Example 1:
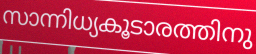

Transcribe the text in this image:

സാന്നിധ്യകൂടാരത്തിനു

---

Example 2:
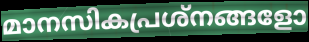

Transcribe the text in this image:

മാനസികപ്രശ്നങ്ങളോ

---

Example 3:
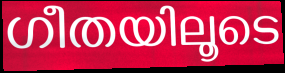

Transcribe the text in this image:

ഗീതയിലൂടെ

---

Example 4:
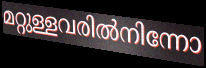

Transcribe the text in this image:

മറ്റുള്ളവരിൽനിന്നോ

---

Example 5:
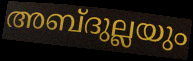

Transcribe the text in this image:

അബ്ദുല്ലയും